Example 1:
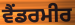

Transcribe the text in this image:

ਵੈਂਡਰਮੀਰ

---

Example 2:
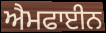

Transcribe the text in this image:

ਐਮਫਾਈਨ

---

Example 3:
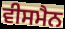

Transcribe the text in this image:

ਵੀਸਮੈਨ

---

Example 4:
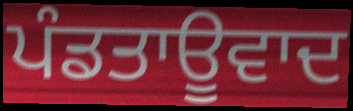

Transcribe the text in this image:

ਪੰਡਤਾਊਵਾਦ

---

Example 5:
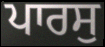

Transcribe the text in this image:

ਪਾਰਸੁ